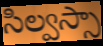
సిల్వస్సా